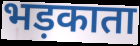
भड़काता